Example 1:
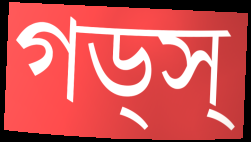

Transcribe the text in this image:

গড্স্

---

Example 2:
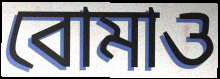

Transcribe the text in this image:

বোমাও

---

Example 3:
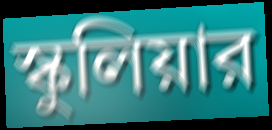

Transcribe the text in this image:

স্কুলিয়ার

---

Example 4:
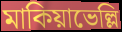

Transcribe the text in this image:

মাকিয়াভেল্লি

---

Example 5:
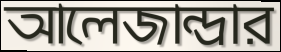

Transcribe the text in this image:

আলেজান্দ্রার